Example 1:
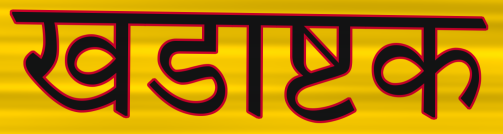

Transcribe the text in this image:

खडाष्टक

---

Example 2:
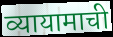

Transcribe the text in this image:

व्यायामाची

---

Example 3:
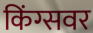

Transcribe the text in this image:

किंग्सवर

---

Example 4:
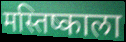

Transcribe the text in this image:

मस्तिष्काला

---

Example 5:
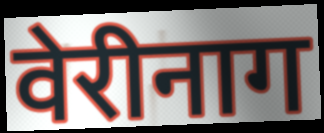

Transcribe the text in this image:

वेरीनाग